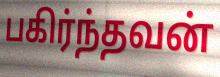
பகிர்ந்தவன்